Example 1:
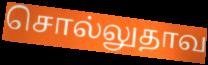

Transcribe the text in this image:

சொல்லுதாவ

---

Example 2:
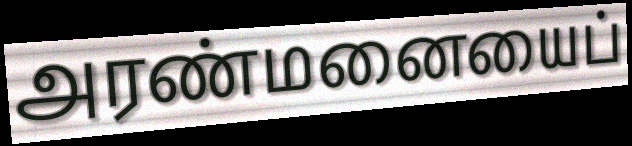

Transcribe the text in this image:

அரண்மனையைப்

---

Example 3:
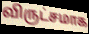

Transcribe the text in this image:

விருட்சமாக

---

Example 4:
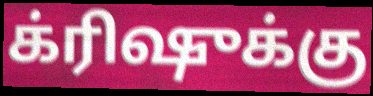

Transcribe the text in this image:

க்ரிஷுக்கு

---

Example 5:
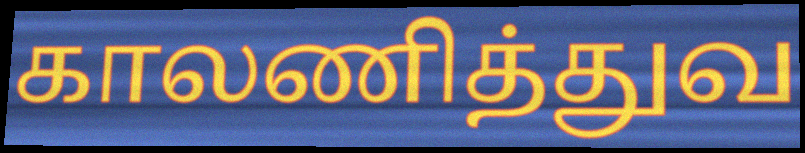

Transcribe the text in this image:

காலணித்துவ